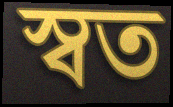
স্বত